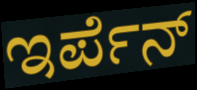
ಇರ್ಪೆನ್